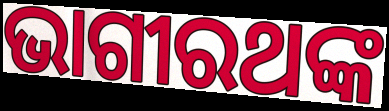
ଭାଗୀରଥଙ୍କ